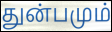
துன்பமும்